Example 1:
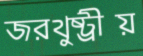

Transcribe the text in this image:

জরথুষ্ট্রীয়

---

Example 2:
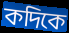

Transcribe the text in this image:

কদিকে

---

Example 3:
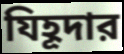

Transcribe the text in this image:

যিহূদার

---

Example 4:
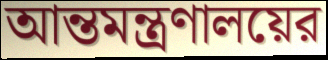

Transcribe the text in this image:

আন্তমন্ত্রণালয়ের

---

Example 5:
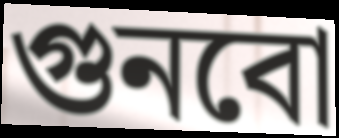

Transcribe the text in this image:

গুনবো